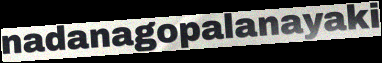
nadanagopalanayaki